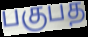
பகுபத